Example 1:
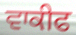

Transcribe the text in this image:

ਵਾਕੀਫ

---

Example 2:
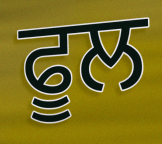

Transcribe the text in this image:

ਫੂਲ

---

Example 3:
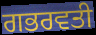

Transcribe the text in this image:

ਗਭਰਵਤੀ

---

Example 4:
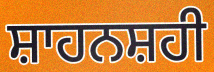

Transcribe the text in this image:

ਸ਼ਾਹਨਸ਼ਹੀ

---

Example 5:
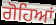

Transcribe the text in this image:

ਗੋਹਿਆਂ